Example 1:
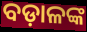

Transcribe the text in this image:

ବଡ଼ାଳଙ୍କ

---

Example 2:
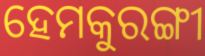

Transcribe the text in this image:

ହେମକୁରଙ୍ଗୀ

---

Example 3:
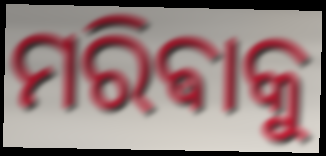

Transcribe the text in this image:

ମରିଵାକୁ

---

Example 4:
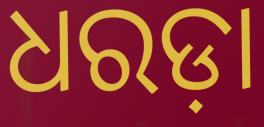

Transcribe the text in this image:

ଧରଡ଼ା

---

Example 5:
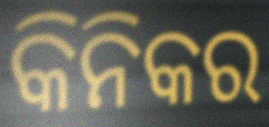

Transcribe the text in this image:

କିନିକର